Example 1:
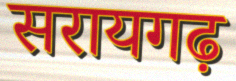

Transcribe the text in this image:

सरायगढ़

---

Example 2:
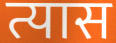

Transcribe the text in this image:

त्यास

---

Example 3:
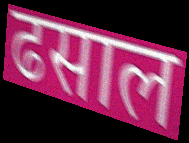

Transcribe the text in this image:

ढसाल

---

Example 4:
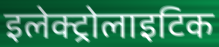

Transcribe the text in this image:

इलेक्ट्रोलाइटिक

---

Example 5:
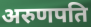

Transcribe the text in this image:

अरुणपति